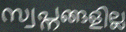
സ്വപ്നങ്ങളില്ല